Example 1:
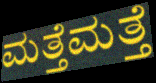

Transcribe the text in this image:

ಮತ್ತೆಮತ್ತೆ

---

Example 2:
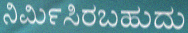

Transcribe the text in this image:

ನಿರ್ಮಿಸಿರಬಹುದು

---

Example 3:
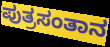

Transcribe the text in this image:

ಪುತ್ರಸಂತಾನ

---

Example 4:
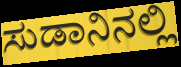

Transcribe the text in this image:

ಸುಡಾನಿನಲ್ಲಿ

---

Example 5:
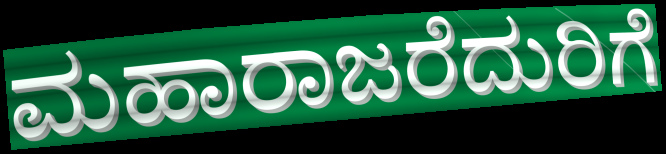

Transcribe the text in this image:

ಮಹಾರಾಜರೆದುರಿಗೆ